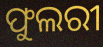
ଫୁଲରୀ